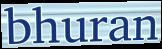
bhuran